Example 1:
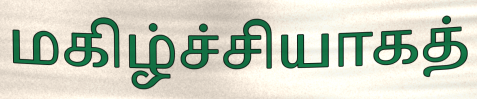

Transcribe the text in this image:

மகிழ்ச்சியாகத்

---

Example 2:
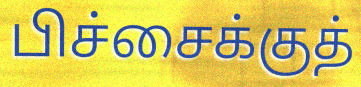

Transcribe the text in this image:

பிச்சைக்குத்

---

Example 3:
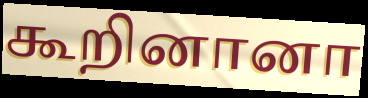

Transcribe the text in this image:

கூறினானா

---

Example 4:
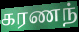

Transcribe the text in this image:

கரணந்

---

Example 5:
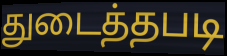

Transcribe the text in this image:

துடைத்தபடி